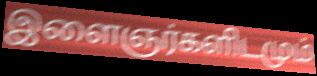
இளைஞர்களிடமும்